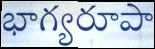
భాగ్యరూపా